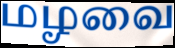
மழவை